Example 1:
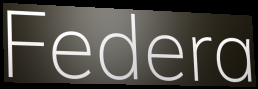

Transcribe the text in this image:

Federa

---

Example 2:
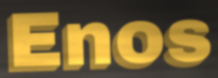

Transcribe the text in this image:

Enos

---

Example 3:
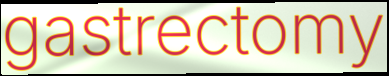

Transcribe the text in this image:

gastrectomy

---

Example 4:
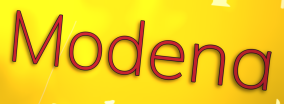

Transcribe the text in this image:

Modena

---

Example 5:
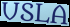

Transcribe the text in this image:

USLA